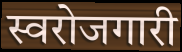
स्वरोजगारी